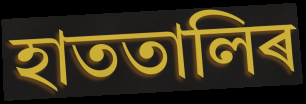
হাততালিৰ